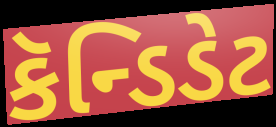
કૅન્ડિડેટ